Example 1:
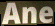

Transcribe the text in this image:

Ane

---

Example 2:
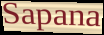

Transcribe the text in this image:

Sapana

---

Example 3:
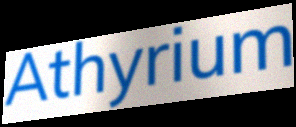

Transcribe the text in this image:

Athyrium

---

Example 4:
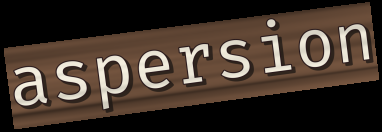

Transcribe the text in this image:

aspersion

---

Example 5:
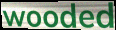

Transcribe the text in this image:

wooded